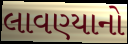
લાવણ્યાનો